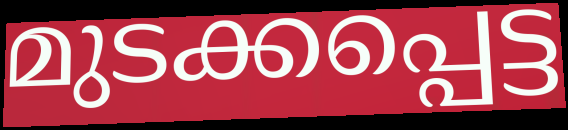
മുടക്കപ്പെട്ട